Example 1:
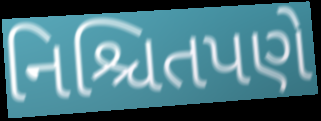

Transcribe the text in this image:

નિશ્ચિતપણે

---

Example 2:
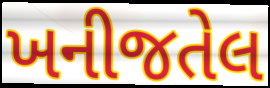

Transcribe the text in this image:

ખનીજતેલ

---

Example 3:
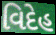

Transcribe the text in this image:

વિદેહ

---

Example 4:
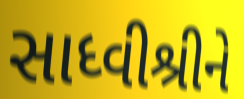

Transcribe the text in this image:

સાધ્વીશ્રીને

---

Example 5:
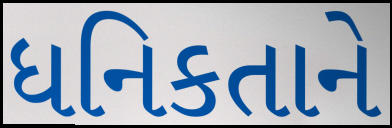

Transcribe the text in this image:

ધનિકતાને